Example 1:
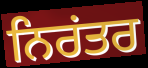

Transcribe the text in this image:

ਨਿਰਂਤਰ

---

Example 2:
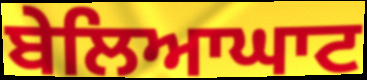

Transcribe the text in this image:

ਬੇਲਿਆਘਾਟ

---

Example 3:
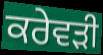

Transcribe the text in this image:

ਕਰੇਵੜੀ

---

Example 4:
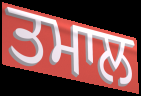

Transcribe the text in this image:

ਤਮਾਲ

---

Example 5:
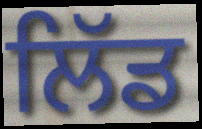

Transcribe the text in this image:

ਲਿੱਡ